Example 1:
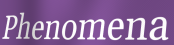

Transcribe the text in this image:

Phenomena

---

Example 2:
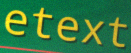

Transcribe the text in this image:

etext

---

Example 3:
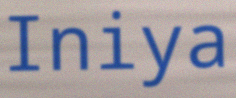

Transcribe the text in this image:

Iniya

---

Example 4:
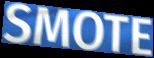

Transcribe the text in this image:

SMOTE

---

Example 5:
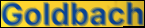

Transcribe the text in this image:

Goldbach